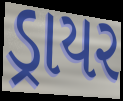
ડ્રાયર